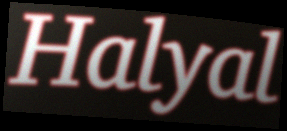
Halyal